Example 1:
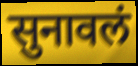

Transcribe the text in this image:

सुनावलं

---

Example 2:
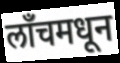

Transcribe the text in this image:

लॉंचमधून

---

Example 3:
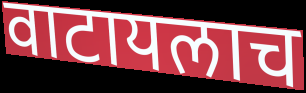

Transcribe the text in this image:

वाटायलाच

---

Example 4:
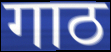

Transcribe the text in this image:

गाठ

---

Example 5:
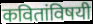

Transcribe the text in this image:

कवितांविषयी